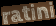
ratini